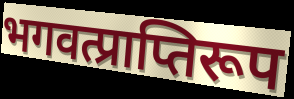
भगवत्प्राप्तिरूप